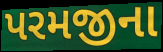
પરમજીના